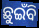
ଛୁଇଁବି